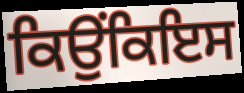
ਕਿਉਂਕਿਇਸ